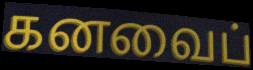
கனவைப்